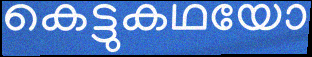
കെട്ടുകഥയോ